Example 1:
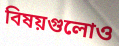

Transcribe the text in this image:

বিষয়গুলোও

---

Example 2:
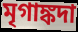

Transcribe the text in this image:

মৃগাঙ্কদা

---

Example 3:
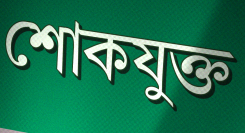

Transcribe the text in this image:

শোকযুক্ত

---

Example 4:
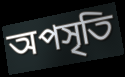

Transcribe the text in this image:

অপসৃতি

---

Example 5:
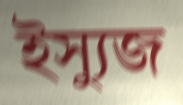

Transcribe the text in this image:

ইস্যুজ